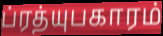
ப்ரத்யுபகாரம்